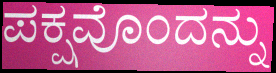
ಪಕ್ಷವೊಂದನ್ನು